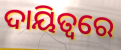
ଦାୟିତ୍ବରେ